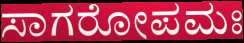
ಸಾಗರೋಪಮಃ